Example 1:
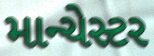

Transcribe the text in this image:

માન્ચેસ્ટર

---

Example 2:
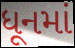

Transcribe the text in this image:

ધૂનમાં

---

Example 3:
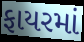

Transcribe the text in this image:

ફાયરમાં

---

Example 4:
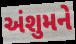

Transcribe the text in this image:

અંશુમને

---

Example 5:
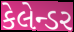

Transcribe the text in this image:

કેલેન્ડર